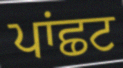
ਪਾਂਛਟ